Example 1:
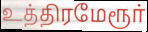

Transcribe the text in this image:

உத்திரமேரூர்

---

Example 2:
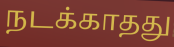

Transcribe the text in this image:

நடக்காதது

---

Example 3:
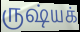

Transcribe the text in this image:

ருஷ்யக்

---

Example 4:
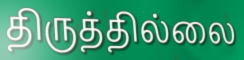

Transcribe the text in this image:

திருத்தில்லை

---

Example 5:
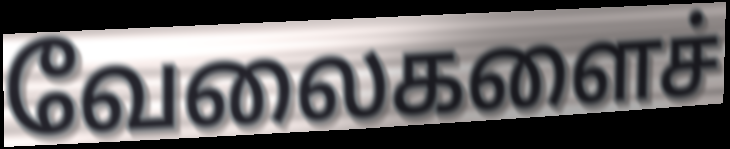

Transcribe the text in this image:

வேலைகளைச்